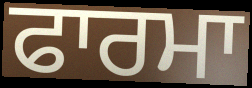
ਫਾਰਮਾ